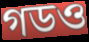
গডও